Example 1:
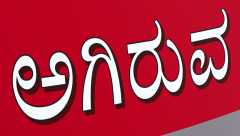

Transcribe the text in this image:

ಅಗಿರುವ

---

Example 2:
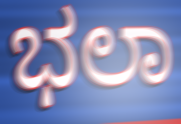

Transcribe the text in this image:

ಭಲಾ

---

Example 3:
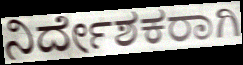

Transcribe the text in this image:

ನಿರ್ದೇಶಕರಾಗಿ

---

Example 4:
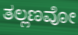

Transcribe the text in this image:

ತಲ್ಲಣವೋ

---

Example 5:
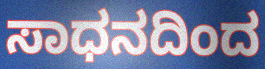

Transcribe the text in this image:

ಸಾಧನದಿಂದ